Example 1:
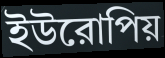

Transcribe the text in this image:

ইউরোপিয়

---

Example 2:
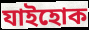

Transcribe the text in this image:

যাইহোক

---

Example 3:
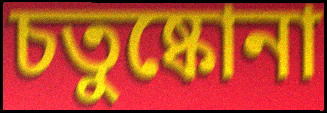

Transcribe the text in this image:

চতুষ্কোনা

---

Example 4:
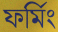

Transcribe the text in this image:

ফর্মিং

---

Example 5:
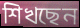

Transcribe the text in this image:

শিখছেন